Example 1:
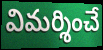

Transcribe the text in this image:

విమర్శించే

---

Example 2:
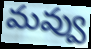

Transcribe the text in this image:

మవ్వు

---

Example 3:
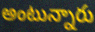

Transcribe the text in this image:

అంటున్నారు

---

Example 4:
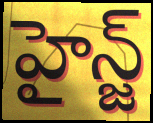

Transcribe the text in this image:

హైన్జ్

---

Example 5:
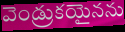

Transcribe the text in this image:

వెండ్రుకయైనను